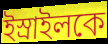
ইস্রাইলকে